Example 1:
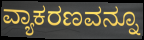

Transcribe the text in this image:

ವ್ಯಾಕರಣವನ್ನೂ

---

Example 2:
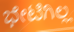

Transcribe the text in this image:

ಭೇಟಿಗಿಲ್ಲ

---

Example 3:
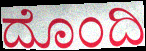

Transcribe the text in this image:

ದೊಂದಿ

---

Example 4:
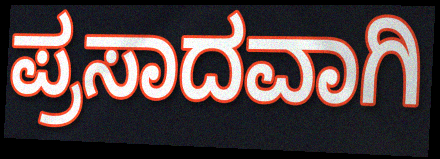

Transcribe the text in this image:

ಪ್ರಸಾದವಾಗಿ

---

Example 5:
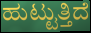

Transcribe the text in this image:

ಹುಟ್ಟುತ್ತಿದೆ